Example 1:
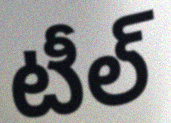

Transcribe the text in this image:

టీల్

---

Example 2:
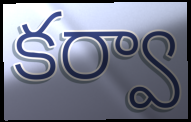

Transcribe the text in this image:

కర్వా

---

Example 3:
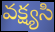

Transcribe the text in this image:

వక్ష్యసి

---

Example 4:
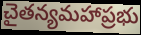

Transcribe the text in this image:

చైతన్యమహాప్రభు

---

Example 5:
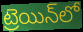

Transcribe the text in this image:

ట్రెయిన్‌లో